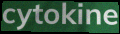
cytokine